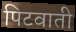
पिटवाती